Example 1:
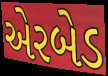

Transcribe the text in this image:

એરબેડ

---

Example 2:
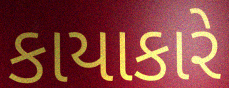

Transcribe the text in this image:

કાયાકારે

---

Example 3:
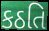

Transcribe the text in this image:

કઠતિ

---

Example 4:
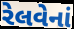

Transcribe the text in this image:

રેલવેનાં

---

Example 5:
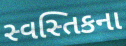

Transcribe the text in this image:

સ્વસ્તિકના